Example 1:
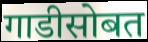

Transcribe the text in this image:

गाडीसोबत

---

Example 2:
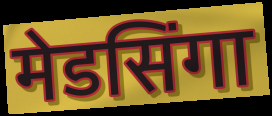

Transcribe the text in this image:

मेडसिंगा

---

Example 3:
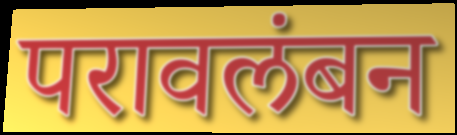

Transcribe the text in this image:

परावलंबन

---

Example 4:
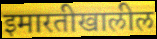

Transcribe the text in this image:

इमारतीखालील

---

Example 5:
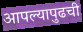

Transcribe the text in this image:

आपल्यापुढची